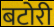
बटोरी